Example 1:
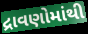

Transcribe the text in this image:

દ્રાવણોમાંથી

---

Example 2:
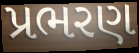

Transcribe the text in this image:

પ્રભરણ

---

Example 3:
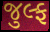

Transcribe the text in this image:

જુલ્ફ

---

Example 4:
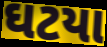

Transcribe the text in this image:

ઘટયા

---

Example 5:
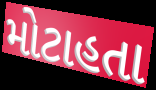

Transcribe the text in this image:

મોટાહતા